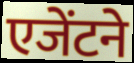
एजेंटने